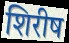
शिरीष